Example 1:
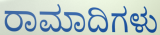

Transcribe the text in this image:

ರಾಮಾದಿಗಳು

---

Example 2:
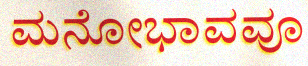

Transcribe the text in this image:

ಮನೋಭಾವವೂ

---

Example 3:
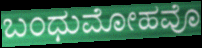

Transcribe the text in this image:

ಬಂಧುಮೋಹವೊ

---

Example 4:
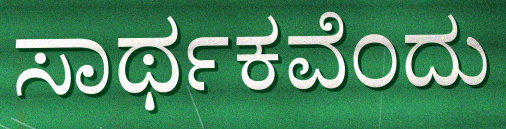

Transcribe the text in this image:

ಸಾರ್ಥಕವೆಂದು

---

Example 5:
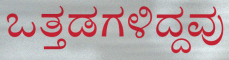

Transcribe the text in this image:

ಒತ್ತಡಗಳಿದ್ದವು